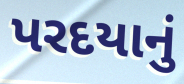
પરદયાનું